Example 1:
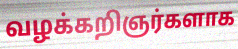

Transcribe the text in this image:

வழக்கறிஞர்களாக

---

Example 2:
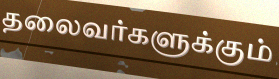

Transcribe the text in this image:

தலைவர்களுக்கும்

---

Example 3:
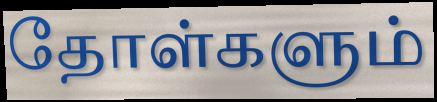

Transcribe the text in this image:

தோள்களும்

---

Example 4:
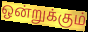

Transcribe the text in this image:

ஒன்றுக்கும்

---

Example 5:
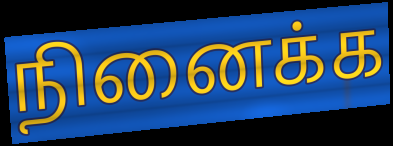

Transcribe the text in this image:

நினைக்க